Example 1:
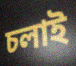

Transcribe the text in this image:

চলাই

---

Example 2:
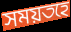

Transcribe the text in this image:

সময়তহে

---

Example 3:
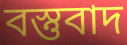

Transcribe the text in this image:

বস্তুবাদ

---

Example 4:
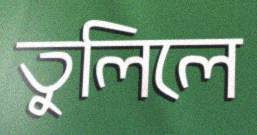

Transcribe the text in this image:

তুলিলে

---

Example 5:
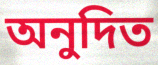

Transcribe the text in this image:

অনুদিত